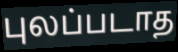
புலப்படாத